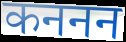
कननन